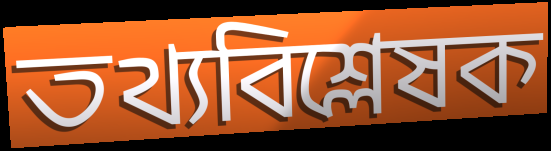
তথ্যবিশ্লেষক